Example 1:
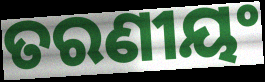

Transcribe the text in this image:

ତରଣୀୟଂ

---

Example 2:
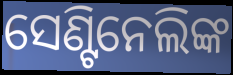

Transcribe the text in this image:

ସେଣ୍ଟିନେଲିଙ୍କ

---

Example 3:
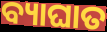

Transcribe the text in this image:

ବ୍ୟାଘାତ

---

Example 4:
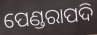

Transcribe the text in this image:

ପେଣ୍ଡରାପଦି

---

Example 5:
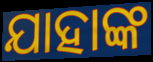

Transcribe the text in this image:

ଯାହାଙ୍କ